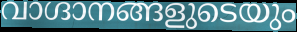
വാഗ്ദാനങ്ങളുടെയും